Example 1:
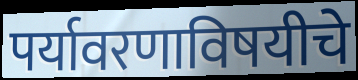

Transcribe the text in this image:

पर्यावरणाविषयीचे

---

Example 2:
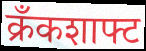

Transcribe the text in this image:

क्रँकशाफ्ट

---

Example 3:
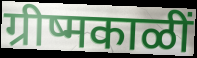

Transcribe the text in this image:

ग्रीष्मकाळीं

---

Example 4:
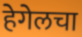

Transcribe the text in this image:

हेगेलचा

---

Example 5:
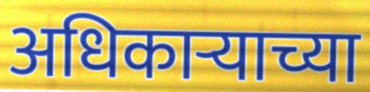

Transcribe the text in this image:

अधिकाऱ्याच्या